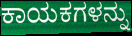
ಕಾಯಕಗಳನ್ನು